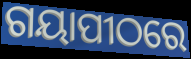
ଗୟାପୀଠରେ